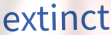
extinct